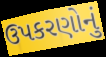
ઉપકરણોનું